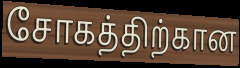
சோகத்திற்கான